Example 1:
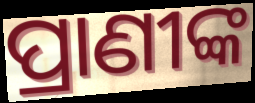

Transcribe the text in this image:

ପ୍ରାଣୀଙ୍କ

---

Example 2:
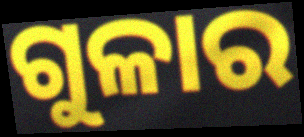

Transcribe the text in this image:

ଗୁଳାର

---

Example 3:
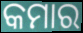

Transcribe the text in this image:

କମାର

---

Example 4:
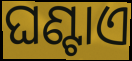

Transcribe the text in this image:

ଘଣ୍ଟାଏ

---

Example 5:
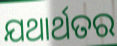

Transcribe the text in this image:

ଯଥାର୍ଥତର